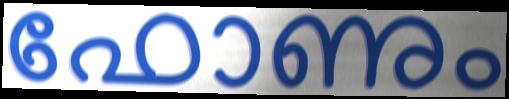
ഫോണും